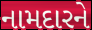
નામદારને